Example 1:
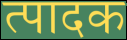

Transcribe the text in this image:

त्पादक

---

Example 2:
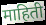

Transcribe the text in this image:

माहिती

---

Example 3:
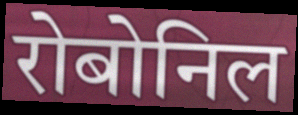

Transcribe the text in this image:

रोबोनिल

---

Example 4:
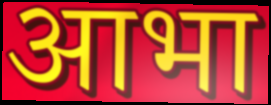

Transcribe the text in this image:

आभा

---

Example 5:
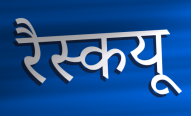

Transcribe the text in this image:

रैस्कयू